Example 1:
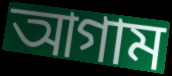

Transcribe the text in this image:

আগাম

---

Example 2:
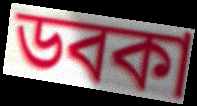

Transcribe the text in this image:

ডবকা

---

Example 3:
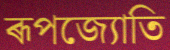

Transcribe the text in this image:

ৰূপজ্যোতি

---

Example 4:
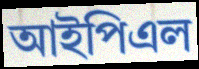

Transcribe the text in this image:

আইপিএল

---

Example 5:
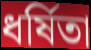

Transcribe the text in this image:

ধৰ্ষিতা